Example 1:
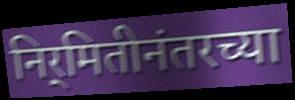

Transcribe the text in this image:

निर्मितीनंतरच्या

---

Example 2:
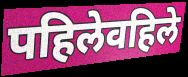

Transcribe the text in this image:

पहिलेवहिले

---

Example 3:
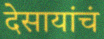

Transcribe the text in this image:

देसायांचं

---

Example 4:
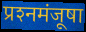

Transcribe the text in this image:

प्रश्नमंजूषा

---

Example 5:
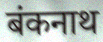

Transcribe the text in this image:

बंकनाथ